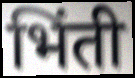
भिंती